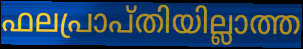
ഫലപ്രാപ്തിയില്ലാത്ത